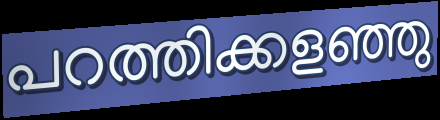
പറത്തിക്കളഞ്ഞു